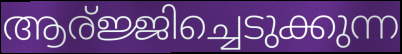
ആര്ജ്ജിച്ചെടുക്കുന്ന